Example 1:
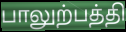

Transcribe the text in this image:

பாலுற்பத்தி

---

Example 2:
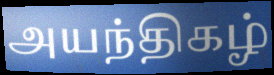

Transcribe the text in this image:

அயந்திகழ்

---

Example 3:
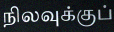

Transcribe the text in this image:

நிலவுக்குப்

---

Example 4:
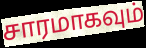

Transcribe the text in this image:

சாரமாகவும்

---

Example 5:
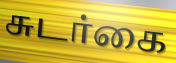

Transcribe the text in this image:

சுடர்கை